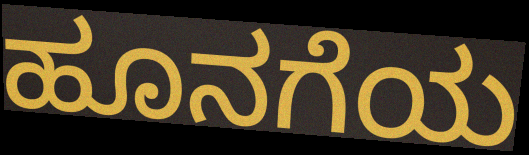
ಹೂನಗೆಯ